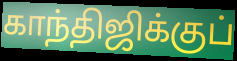
காந்திஜிக்குப்